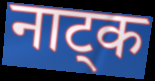
नाट्क